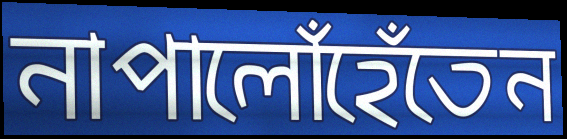
নাপালোঁহেঁতেন